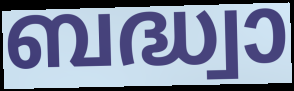
ബദ്ധ്വാ